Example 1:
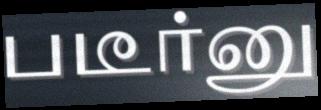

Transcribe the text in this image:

படீர்னு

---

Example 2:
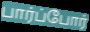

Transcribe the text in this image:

பார்ப்போர்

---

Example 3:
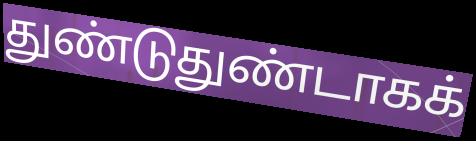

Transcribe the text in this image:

துண்டுதுண்டாகக்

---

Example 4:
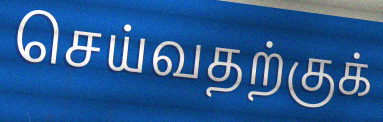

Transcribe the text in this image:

செய்வதற்குக்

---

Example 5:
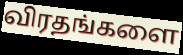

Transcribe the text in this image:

விரதங்களை